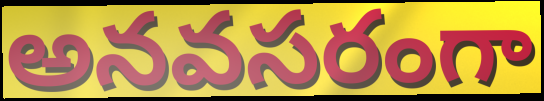
అనవసరంగా